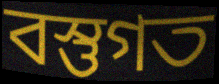
বস্তুগত